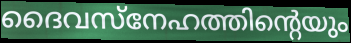
ദൈവസ്നേഹത്തിന്റെയും